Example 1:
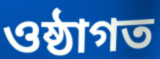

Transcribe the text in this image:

ওষ্ঠাগত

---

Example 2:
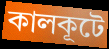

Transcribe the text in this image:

কালকূটে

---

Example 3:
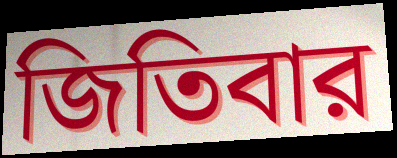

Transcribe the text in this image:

জিতিবার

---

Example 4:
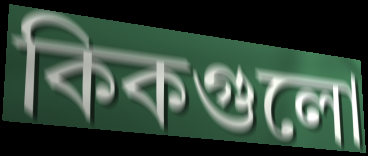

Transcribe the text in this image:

কিকগুলো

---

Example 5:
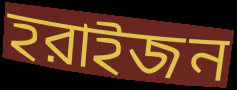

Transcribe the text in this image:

হরাইজন